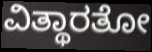
ವಿತ್ಥಾರತೋ